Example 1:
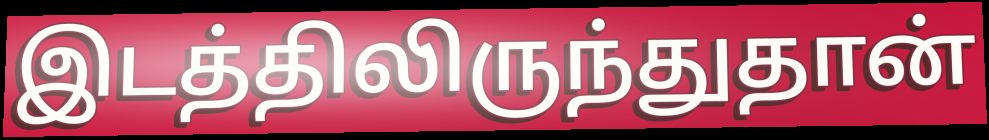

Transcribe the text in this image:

இடத்திலிருந்துதான்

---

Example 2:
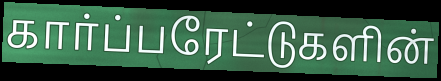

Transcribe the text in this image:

கார்ப்பரேட்டுகளின்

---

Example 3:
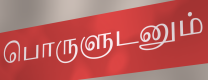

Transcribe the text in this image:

பொருளுடனும்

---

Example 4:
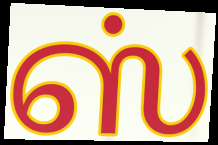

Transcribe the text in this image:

ஸ்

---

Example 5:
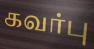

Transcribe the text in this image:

கவர்பு